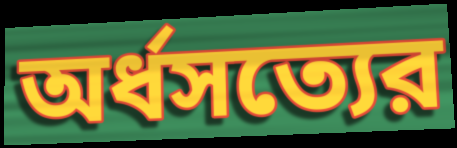
অর্ধসত্যের